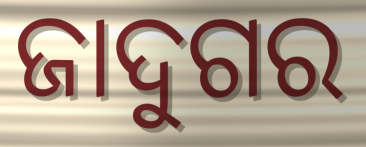
ଜାଦୁଗର